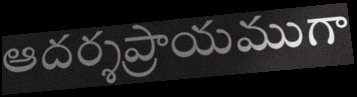
ఆదర్శప్రాయముగా